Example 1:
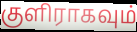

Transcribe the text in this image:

குளிராகவும்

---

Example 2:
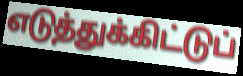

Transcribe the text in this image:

எடுத்துக்கிட்டுப்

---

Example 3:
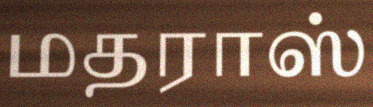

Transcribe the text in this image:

மதராஸ்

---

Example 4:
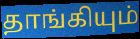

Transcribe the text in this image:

தாங்கியும்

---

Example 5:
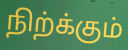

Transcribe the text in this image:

நிற்க்கும்